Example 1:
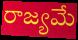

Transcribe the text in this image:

రాజ్యమే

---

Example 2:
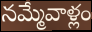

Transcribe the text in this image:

నమ్మేవాళ్లం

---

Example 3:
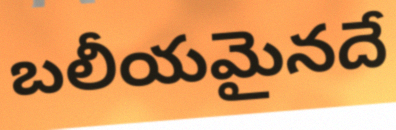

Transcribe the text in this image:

బలీయమైనదే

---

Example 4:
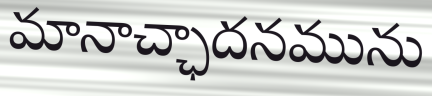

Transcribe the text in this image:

మానాచ్ఛాదనమును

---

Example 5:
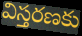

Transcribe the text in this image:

విస్తరణకు